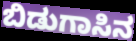
ಬಿಡುಗಾಸಿನ